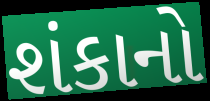
શંકાનો